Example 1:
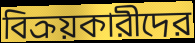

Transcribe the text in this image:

বিক্রয়কারীদের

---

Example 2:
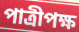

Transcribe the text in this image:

পাত্রীপক্ষ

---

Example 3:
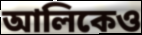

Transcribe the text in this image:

আলিকেও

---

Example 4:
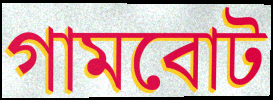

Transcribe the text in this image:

গামবোট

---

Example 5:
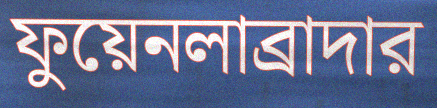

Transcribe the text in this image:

ফুয়েনলাব্রাদার